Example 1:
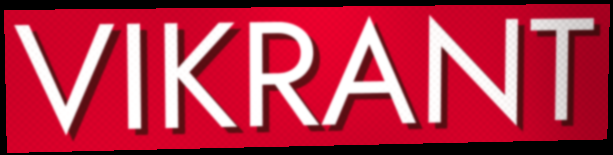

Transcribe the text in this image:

VIKRANT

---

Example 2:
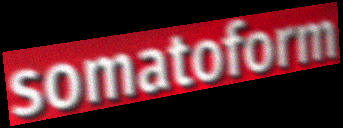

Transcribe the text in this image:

somatoform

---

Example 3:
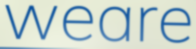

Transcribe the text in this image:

weare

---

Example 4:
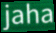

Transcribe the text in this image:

jaha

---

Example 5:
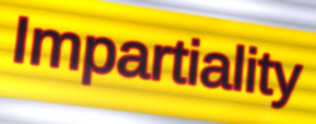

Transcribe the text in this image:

Impartiality